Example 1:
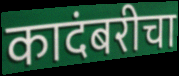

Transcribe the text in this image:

कादंबरीचा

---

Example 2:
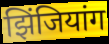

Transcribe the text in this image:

झिंजियांग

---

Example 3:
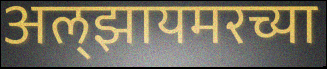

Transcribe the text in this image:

अल्झायमरच्या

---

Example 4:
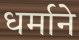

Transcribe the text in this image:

धर्माने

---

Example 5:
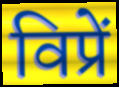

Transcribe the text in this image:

विप्रें